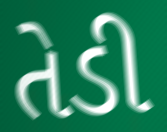
તેડી